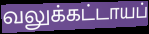
வலுக்கட்டாயப்